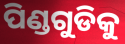
ପିଣ୍ଡଗୁଡିକୁ